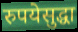
रुपयेसुद्धा